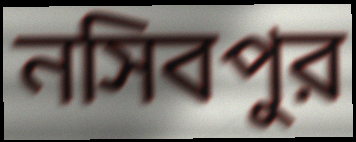
নসিবপুর